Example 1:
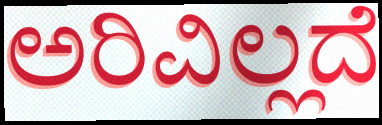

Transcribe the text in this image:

ಅರಿವಿಲ್ಲದೆ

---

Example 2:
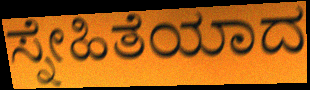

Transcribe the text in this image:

ಸ್ನೇಹಿತೆಯಾದ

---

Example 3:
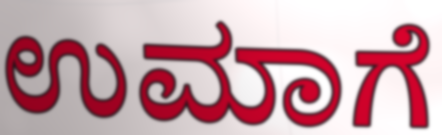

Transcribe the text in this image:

ಉಮಾಗೆ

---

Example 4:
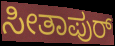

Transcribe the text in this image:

ಸೀತಾಪುರ್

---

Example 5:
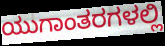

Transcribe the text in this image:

ಯುಗಾಂತರಗಳಲ್ಲಿ